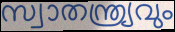
സ്വാതന്ത്ര്യവും